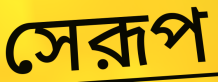
সেরূপ